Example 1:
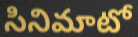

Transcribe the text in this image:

సినిమాటో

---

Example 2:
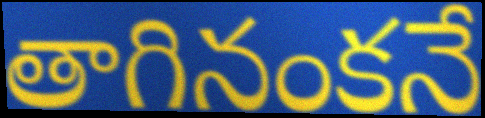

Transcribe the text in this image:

తాగినంకనే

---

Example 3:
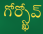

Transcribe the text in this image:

గోర్స్ఖోవ్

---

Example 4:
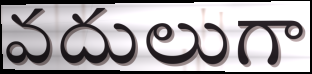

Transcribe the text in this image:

వదులుగా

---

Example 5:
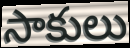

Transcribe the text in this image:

సాకులు